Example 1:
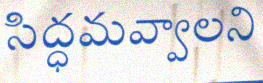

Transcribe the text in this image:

సిద్ధమవ్వాలని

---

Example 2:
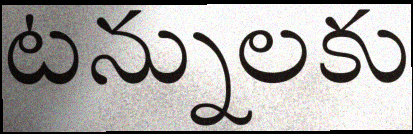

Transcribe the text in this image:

టన్నులకు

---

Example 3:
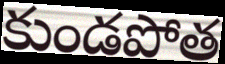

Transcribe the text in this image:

కుండపోత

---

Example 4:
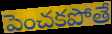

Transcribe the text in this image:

పెంచకపోతే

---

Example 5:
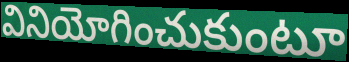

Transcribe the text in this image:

వినియోగించుకుంటూ